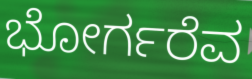
ಭೋರ್ಗರೆವ